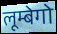
लूम्बेगो